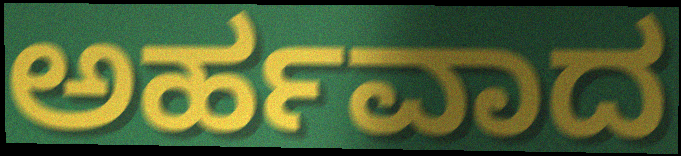
ಅರ್ಹವಾದ